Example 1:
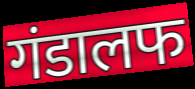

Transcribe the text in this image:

गंडालफ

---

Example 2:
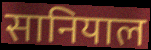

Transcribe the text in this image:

सानियाल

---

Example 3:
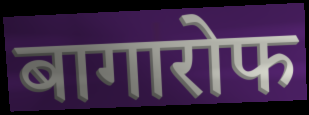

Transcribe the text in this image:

बागारोफ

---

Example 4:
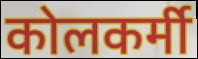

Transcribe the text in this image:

कोलकर्मी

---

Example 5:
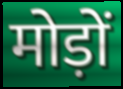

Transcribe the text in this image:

मोड़ों